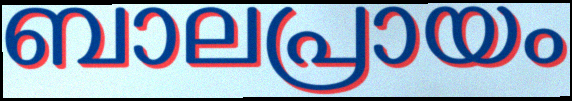
ബാലപ്രായം